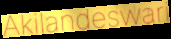
Akilandeswari